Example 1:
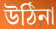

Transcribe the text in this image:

উঠিনা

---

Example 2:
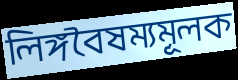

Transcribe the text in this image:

লিঙ্গবৈষম্যমূলক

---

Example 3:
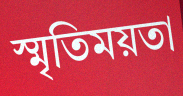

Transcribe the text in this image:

স্মৃতিময়তা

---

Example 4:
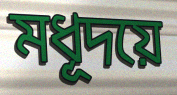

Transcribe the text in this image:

মধূদয়ে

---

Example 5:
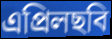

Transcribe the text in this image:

এপ্রিলছবি